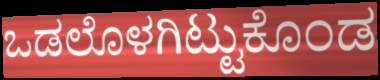
ಒಡಲೊಳಗಿಟ್ಟುಕೊಂಡ